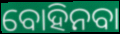
ବୋହିନବା